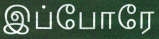
இப்போரே